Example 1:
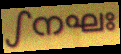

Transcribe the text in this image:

ഽനഘഃ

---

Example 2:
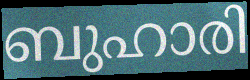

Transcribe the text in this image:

ബുഹാരി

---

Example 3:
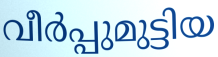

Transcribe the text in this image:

വീർപ്പുമുട്ടിയ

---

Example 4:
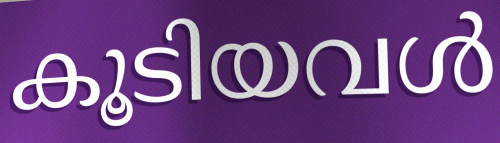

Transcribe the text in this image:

കൂടിയവൾ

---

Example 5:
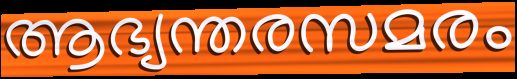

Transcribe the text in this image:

ആഭ്യന്തരസമരം